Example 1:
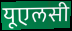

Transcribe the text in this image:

यूएलसी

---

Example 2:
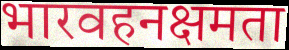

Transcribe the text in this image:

भारवहनक्षमता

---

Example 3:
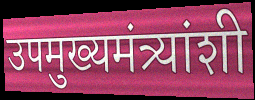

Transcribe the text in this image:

उपमुख्यमंत्र्यांशी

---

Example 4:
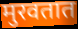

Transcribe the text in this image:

मुरवतात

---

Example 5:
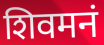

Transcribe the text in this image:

शिवमनं